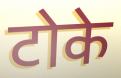
टोके